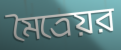
মৈত্রেয়র